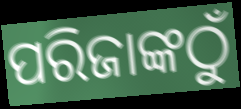
ପରିଜାଙ୍କଠୁଁ